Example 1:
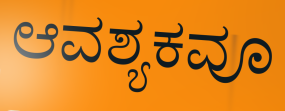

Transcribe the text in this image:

ಆವಶ್ಯಕವೂ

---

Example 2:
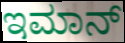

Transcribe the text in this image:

ಇಮಾನ್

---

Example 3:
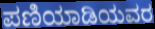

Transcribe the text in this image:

ಪಣಿಯಾಡಿಯವರ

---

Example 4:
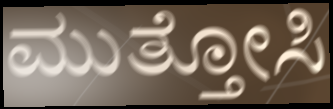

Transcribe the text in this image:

ಮುತ್ತೋಸಿ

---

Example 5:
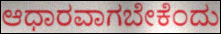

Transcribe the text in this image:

ಆಧಾರವಾಗಬೇಕೆಂದು